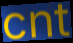
cnt